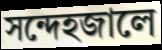
সন্দেহজালে